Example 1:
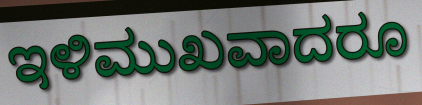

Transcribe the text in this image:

ಇಳಿಮುಖವಾದರೂ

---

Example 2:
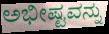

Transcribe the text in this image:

ಅಭೀಷ್ಟವನ್ನು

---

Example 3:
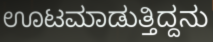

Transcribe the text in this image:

ಊಟಮಾಡುತ್ತಿದ್ದನು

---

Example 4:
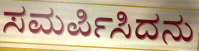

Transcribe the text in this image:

ಸಮರ್ಪಿಸಿದನು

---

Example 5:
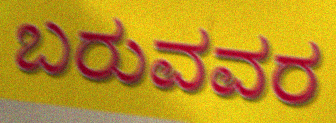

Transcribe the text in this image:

ಬರುವವರ